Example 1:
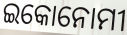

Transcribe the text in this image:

ଇକୋନୋମୀ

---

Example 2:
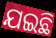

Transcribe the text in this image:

ଯଇଛି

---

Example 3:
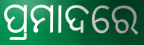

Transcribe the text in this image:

ପ୍ରମାଦରେ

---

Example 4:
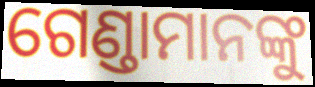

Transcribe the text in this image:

ଗେଣ୍ଡାମାନଙ୍କୁ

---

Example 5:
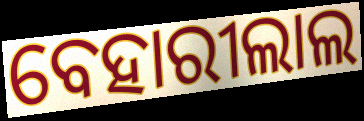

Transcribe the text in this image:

ବେହାରୀଲାଲ